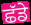
ਛੱਡੇ